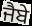
ਜੈਬੇ